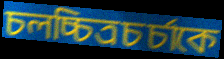
চলচ্চিত্রচর্চাকে